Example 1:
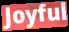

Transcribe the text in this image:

Joyful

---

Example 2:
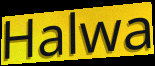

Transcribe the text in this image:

Halwa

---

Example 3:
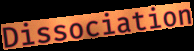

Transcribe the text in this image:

Dissociation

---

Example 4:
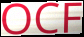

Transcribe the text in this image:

OCF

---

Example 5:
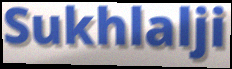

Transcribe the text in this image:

Sukhlalji